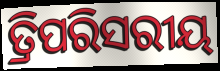
ତ୍ରିପରିସରୀୟ